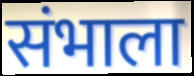
संभाला